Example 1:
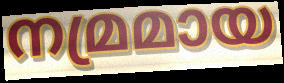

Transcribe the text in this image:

നമ്രമായ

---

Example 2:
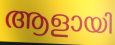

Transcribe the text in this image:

ആളായി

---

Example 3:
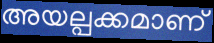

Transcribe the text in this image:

അയല്പക്കമാണ്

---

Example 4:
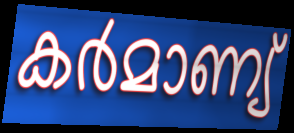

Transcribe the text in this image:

കർമാണ്യ്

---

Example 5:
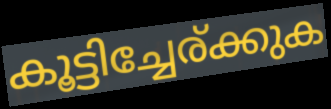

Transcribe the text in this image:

കൂട്ടിച്ചേര്ക്കുക